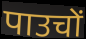
पाउचों